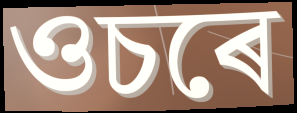
ওচৰে